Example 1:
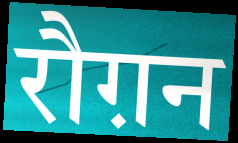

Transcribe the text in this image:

रौग़न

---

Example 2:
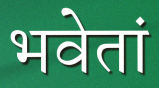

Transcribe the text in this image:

भवेतां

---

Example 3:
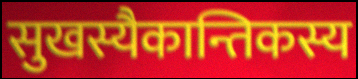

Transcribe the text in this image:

सुखस्यैकान्तिकस्य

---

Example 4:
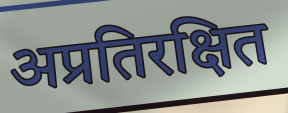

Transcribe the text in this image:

अप्रतिरक्षित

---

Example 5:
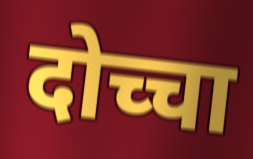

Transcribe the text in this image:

दोच्चा